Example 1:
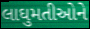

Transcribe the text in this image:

લાઘુમતીઓને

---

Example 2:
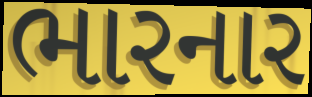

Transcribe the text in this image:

ભારનાર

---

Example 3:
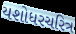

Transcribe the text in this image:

યશોધરચરિત્ર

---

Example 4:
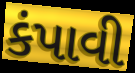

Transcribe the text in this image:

કંપાવી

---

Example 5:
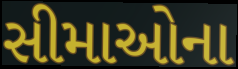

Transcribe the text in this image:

સીમાઓના